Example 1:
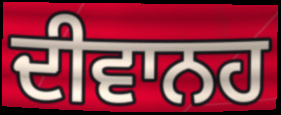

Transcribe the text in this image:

ਦੀਵਾਨਹ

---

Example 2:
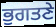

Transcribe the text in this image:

ਭੁਗਤਣੇ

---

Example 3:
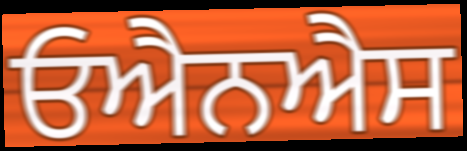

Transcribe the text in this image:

ਓਐਨਐਸ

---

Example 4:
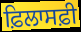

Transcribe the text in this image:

ਫ਼ਿਲਾਸਫ਼ੀ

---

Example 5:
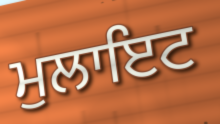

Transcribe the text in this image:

ਮੁਲਾਇਟ